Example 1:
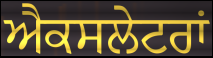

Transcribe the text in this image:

ਐਕਸਲੇਟਰਾਂ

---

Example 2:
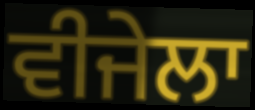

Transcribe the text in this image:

ਵੀਜੇਲਾ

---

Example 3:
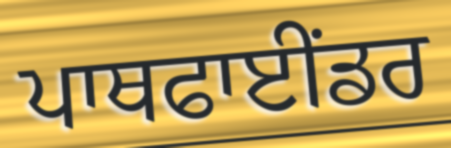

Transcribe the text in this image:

ਪਾਥਫਾਈਂਡਰ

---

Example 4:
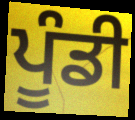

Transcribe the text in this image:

ਪੂੰਡੀ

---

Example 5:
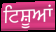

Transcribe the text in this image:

ਟਿਸ਼ੂਆਂ